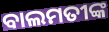
ବାଲମତୀଙ୍କ